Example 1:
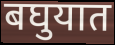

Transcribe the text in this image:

बघुयात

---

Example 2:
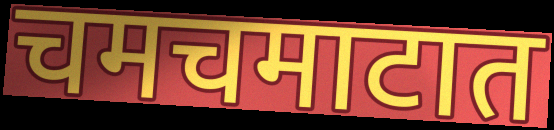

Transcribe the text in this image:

चमचमाटात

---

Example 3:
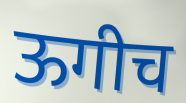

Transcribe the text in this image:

ऊगीच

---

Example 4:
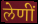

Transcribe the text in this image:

लेणीं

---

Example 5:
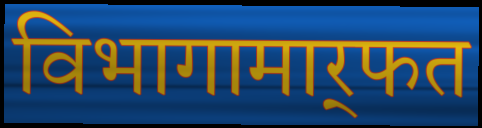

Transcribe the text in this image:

विभागामार्फत